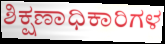
ಶಿಕ್ಷಣಾಧಿಕಾರಿಗಳ